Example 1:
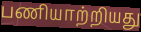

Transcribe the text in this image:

பணியாற்றியது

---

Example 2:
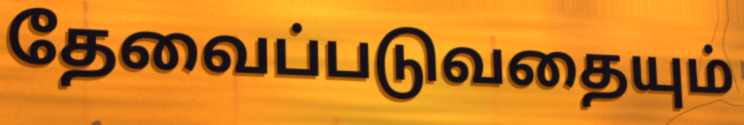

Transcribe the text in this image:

தேவைப்படுவதையும்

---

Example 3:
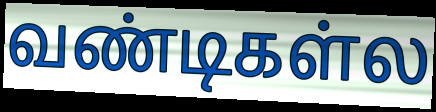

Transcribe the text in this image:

வண்டிகள்ல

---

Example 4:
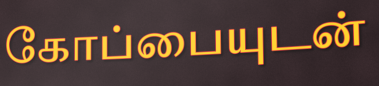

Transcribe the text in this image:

கோப்பையுடன்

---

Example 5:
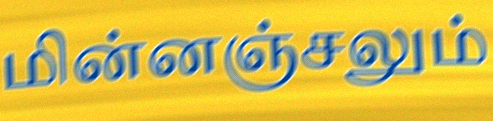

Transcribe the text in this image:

மின்னஞ்சலும்